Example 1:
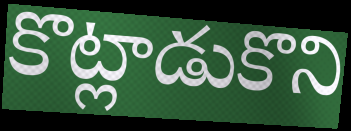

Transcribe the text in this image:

కొట్లాడుకొని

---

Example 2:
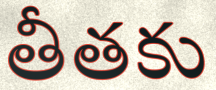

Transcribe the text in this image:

తీతకు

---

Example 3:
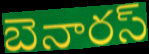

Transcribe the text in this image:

బెనారస్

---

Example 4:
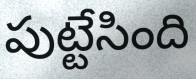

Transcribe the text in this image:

పుట్టేసింది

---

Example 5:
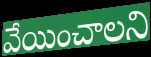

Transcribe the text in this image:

వేయించాలని